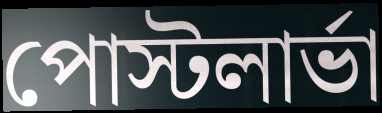
পোস্টলার্ভা